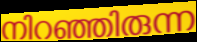
നിറഞ്ഞിരുന്ന